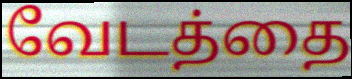
வேடத்தை